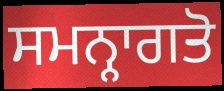
ਸਮਨ੍ਨਾਗਤੋ